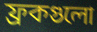
ফ্রকগুলো